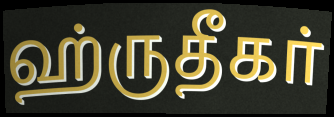
ஹ்ருதீகர்